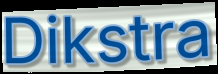
Dikstra